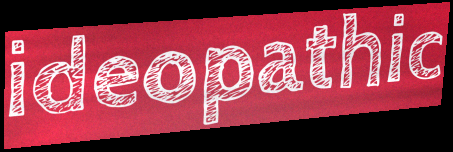
ideopathic